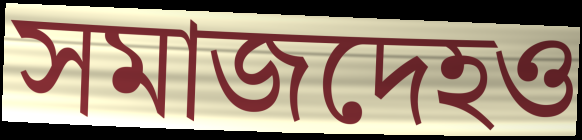
সমাজদেহও